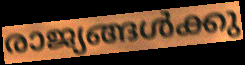
രാജ്യങ്ങൾക്കു